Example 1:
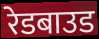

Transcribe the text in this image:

रेडबाउड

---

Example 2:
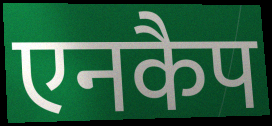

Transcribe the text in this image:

एनकैप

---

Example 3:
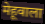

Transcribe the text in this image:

मेहूवाला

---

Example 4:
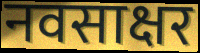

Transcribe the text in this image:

नवसाक्षर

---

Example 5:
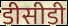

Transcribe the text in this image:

डीसीडी